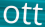
ott